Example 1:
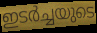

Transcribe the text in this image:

ഇടർച്ചയുടെ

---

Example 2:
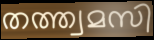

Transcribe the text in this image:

തത്ത്വമസി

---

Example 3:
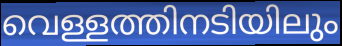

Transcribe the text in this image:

വെള്ളത്തിനടിയിലും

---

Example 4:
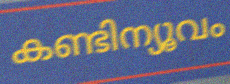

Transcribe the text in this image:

കണ്ടിന്യൂവം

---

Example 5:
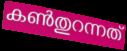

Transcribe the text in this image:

കൺതുറന്നത്